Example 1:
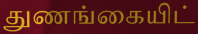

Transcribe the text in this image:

துணங்கையிட்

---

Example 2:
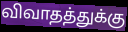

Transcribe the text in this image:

விவாதத்துக்கு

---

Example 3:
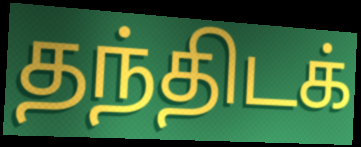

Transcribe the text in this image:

தந்திடக்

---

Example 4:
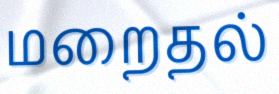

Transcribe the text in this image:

மறைதல்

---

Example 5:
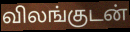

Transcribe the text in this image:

விலங்குடன்